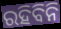
ରହିବିନି